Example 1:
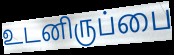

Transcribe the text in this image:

உடனிருப்பை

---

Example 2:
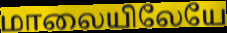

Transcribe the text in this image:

மாலையிலேயே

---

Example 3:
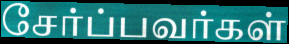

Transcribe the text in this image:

சேர்ப்பவர்கள்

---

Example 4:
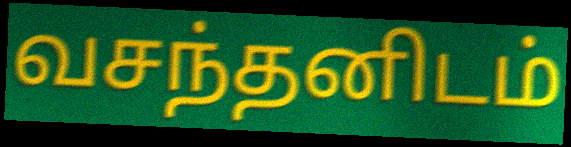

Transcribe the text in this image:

வசந்தனிடம்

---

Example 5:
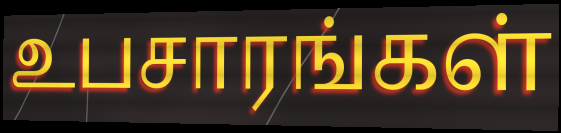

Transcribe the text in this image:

உபசாரங்கள்